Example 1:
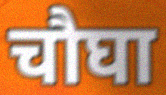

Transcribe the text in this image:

चौघा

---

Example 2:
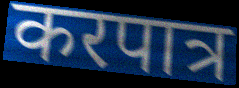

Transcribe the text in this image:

करपात्र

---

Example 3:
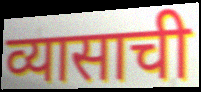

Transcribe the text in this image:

व्यासाची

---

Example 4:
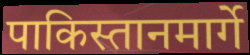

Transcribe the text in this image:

पाकिस्तानमार्गे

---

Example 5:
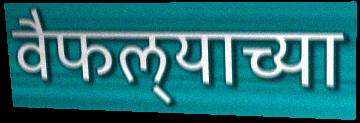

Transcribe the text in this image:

वैफल्याच्या